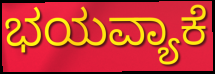
ಭಯವ್ಯಾಕೆ